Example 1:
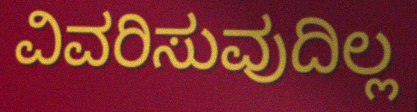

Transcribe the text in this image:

ವಿವರಿಸುವುದಿಲ್ಲ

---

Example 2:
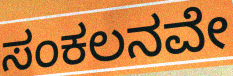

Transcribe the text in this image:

ಸಂಕಲನವೇ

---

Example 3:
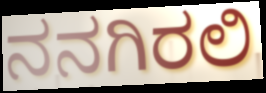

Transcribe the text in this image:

ನನಗಿರಲಿ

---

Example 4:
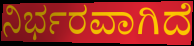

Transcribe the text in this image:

ನಿರ್ಭರವಾಗಿದೆ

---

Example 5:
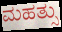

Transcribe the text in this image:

ಮಹತ್ಸು